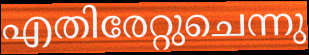
എതിരേറ്റുചെന്നു